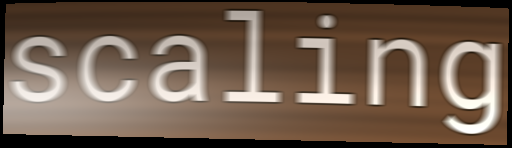
scaling